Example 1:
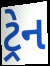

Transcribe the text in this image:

ટ્રેન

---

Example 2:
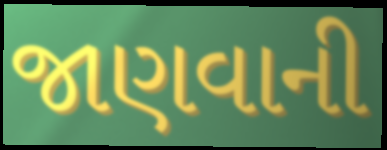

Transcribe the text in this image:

જાણવાની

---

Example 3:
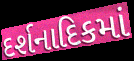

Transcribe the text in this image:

દર્શનાદિકમાં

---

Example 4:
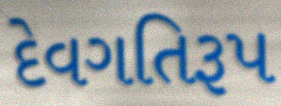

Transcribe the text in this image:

દેવગતિરૂપ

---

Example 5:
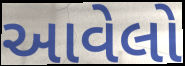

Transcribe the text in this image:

આવેલો